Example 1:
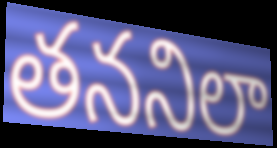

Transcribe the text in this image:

తననిలా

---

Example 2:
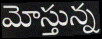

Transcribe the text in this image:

మోస్తున్న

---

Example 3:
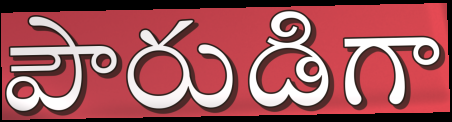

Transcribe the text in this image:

పౌరుడిగా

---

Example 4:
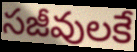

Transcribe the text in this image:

సజీవులకే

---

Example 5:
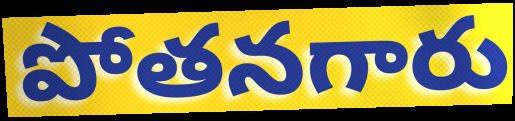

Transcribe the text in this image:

పోతనగారు